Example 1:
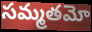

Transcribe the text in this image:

సమ్మతమో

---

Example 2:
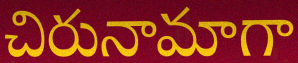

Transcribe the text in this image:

చిరునామాగా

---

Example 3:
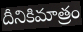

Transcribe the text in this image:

దీనికిమాత్రం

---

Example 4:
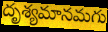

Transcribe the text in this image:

దృశ్యమానమగు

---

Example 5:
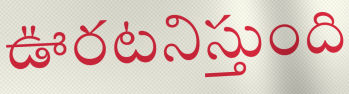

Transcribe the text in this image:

ఊరటనిస్తుంది